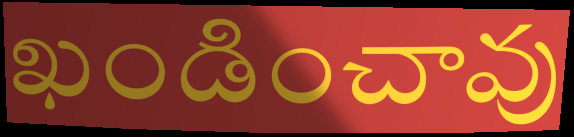
ఖండించావు